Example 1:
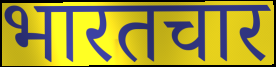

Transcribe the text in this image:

भारतचार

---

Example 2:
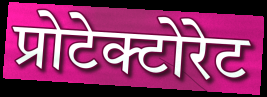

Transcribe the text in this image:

प्रोटेक्टोरेट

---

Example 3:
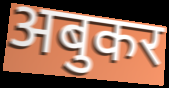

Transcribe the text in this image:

अबुकर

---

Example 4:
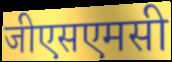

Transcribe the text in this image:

जीएसएमसी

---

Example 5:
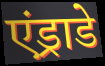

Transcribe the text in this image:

एंड्राडे